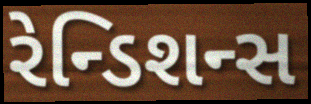
રેન્ડિશન્સ